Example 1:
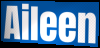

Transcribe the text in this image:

Aileen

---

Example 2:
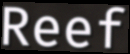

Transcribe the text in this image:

Reef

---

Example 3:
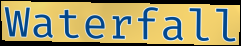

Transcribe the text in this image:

Waterfall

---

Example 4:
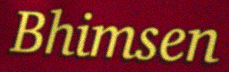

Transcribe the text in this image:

Bhimsen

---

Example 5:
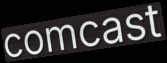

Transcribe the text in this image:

comcast